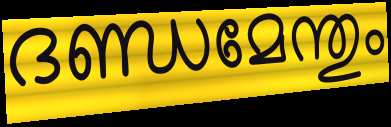
ദണ്ഡമേന്തും